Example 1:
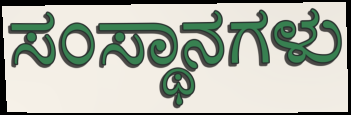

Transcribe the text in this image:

ಸಂಸ್ಥಾನಗಳು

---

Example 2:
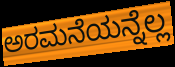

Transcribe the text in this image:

ಅರಮನೆಯನ್ನೆಲ್ಲ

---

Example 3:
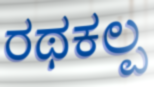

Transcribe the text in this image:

ರಥಕಲ್ಪ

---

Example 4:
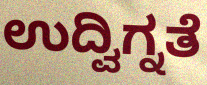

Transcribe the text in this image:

ಉದ್ವಿಗ್ನತೆ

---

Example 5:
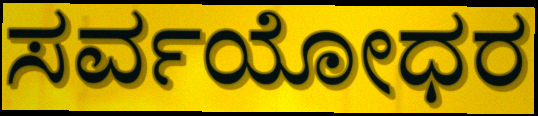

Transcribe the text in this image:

ಸರ್ವಯೋಧರ